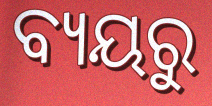
ବ୍ୟୟରୁ